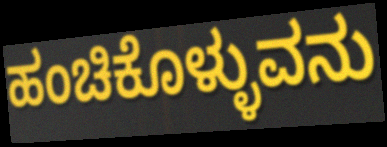
ಹಂಚಿಕೊಳ್ಳುವನು